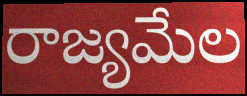
రాజ్యమేల